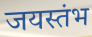
जयस्तंभ